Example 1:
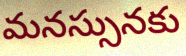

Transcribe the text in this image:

మనస్సునకు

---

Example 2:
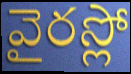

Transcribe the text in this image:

వైరస్లో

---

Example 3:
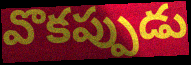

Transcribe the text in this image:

వొకప్పుడు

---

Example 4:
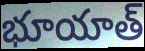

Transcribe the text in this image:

భూయాత్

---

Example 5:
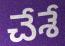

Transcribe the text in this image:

చేశే